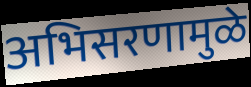
अभिसरणामुळे